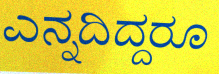
ಎನ್ನದಿದ್ದರೂ